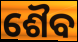
ଶୈବ